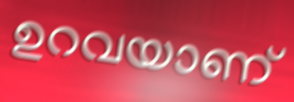
ഉറവയാണ്